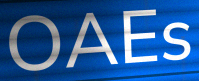
OAEs